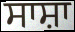
ਸਾਸ਼ਾ